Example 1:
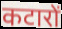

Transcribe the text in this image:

कटारों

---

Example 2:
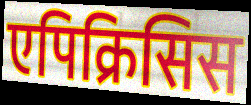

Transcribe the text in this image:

एपिक्रिसिस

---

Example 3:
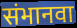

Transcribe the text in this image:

संभानवा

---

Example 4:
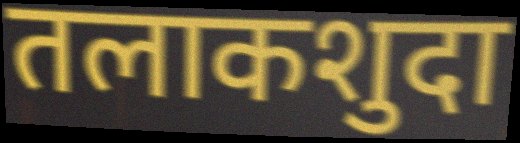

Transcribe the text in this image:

तलाकशुदा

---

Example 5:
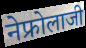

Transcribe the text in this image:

नेफ्रोलाजी